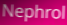
Nephrol